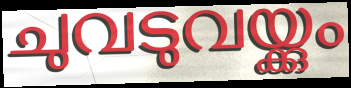
ചുവടുവയ്ക്കും